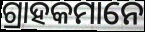
ଗ୍ରାହକମାନେ